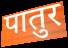
पातुर